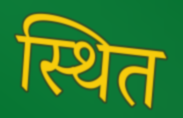
स्थित